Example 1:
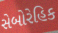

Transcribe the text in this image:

સેબોરેહિક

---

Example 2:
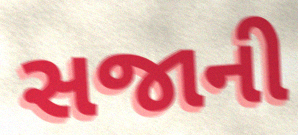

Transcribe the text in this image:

સજાની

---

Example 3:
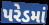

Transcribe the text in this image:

પરેડમાં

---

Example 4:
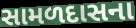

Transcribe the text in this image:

સામળદાસના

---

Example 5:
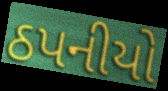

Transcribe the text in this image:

ઠપનીયો